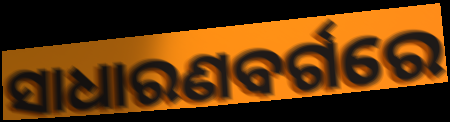
ସାଧାରଣବର୍ଗରେ